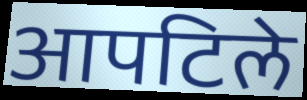
आपटिले